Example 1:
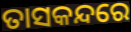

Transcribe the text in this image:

ତାସକନ୍ଦରେ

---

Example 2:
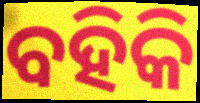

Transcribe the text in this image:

ବହିକି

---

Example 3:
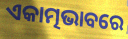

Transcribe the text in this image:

ଏକାତ୍ମଭାବରେ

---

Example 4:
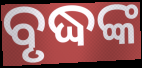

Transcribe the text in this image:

ବୃଦ୍ଧଙ୍କ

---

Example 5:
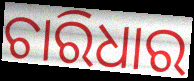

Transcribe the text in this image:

ଚାରିଧାର